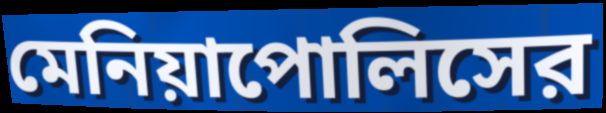
মেনিয়াপোলিসের